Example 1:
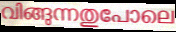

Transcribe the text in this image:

വിങ്ങുന്നതുപോലെ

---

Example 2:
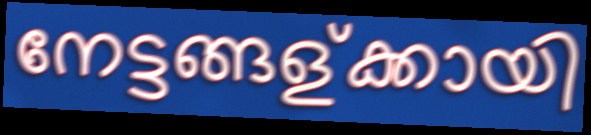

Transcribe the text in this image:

നേട്ടങ്ങള്ക്കായി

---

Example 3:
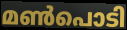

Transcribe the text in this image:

മൺപൊടി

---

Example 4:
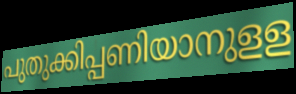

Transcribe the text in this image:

പുതുക്കിപ്പണിയാനുളള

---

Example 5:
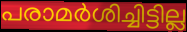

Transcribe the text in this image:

പരാമർശിച്ചിട്ടില്ല